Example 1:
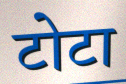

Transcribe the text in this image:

टोटा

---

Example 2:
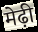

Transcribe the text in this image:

मेढ़ी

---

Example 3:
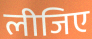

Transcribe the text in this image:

लीजिए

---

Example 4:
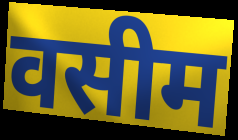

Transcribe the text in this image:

वसीम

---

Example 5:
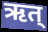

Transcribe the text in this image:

ऋत्